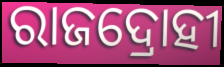
ରାଜଦ୍ରୋହୀ